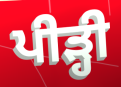
ਪੀੜ੍ਹੀ